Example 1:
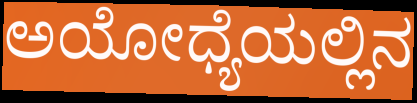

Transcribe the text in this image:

ಅಯೋಧ್ಯೆಯಲ್ಲಿನ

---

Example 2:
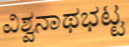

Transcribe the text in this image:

ವಿಶ್ವನಾಥಭಟ್ಟ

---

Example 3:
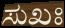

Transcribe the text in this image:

ಸುಖಃ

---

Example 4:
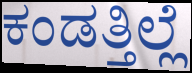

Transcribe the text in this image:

ಕಂಡತ್ತಿಲ್ಲೆ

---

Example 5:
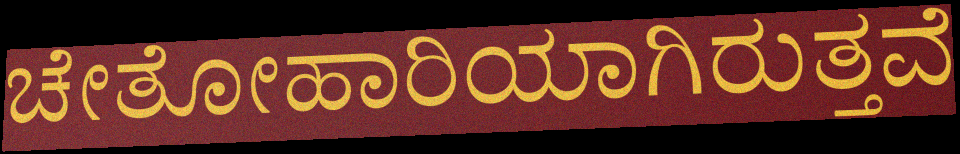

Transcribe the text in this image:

ಚೇತೋಹಾರಿಯಾಗಿರುತ್ತವೆ